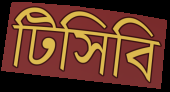
টিসিবি